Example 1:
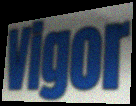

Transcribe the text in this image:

Vigor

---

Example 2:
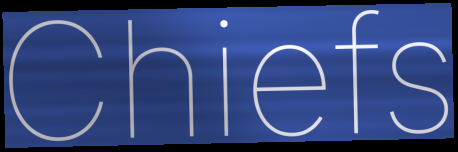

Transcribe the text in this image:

Chiefs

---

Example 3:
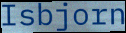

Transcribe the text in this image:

Isbjorn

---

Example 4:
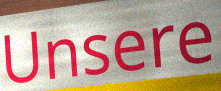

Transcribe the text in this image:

Unsere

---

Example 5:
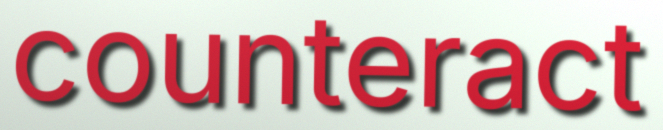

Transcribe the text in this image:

counteract